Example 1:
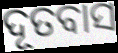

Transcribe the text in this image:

ଦୂତବାସ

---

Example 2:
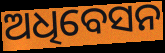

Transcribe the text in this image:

ଅଧିବେସନ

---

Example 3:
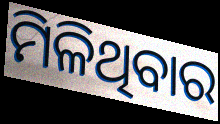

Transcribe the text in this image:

ମିଳିଥିବାର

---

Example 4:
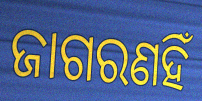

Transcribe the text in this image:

ଜାଗରଣହିଁ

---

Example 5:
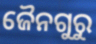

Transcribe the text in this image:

ଜୈନଗୁରୁ